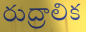
రుద్రాలిక